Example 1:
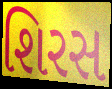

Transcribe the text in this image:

શિરસ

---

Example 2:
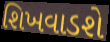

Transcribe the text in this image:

શિખવાડશે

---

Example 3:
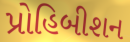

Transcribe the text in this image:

પ્રોહિબીશન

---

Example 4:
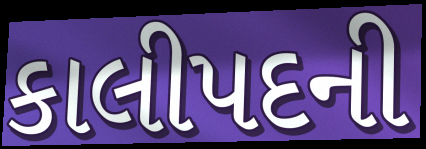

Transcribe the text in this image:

કાલીપદની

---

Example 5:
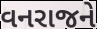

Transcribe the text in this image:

વનરાજને